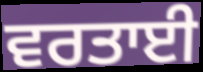
ਵਰਤਾਈ